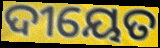
ଦୀୟେତ